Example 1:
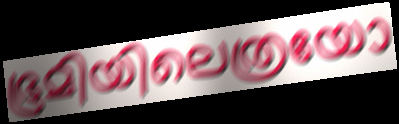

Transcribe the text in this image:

ഭൂമിയിലെത്രയോ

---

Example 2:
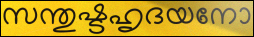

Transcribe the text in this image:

സന്തുഷ്ടഹൃദയനോ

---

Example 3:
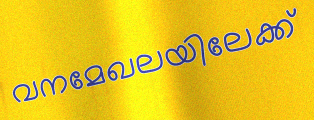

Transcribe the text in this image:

വനമേഖലയിലേക്ക്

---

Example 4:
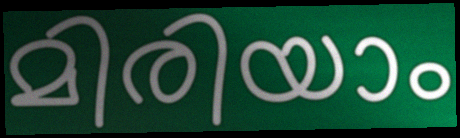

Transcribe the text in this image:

മിരിയാം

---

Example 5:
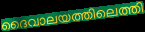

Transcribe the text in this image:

ദൈവാലയത്തിലെത്തി